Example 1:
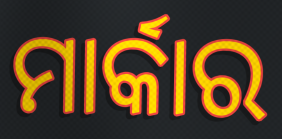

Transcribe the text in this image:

ମାର୍କାର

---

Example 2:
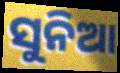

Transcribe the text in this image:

ସୁନିଆ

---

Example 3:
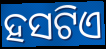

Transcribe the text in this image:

ହସଟିଏ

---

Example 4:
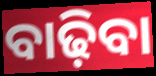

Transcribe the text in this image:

ବାଢ଼ିବା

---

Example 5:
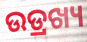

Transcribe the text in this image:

ଉଡ୍ରଖ୍ୟ